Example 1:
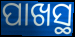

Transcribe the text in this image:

ପାଖସ୍ଥ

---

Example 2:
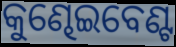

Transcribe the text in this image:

କୁଣ୍ଢେଇବେଣ୍ଟ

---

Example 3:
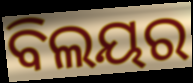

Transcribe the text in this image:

ବିଲୟର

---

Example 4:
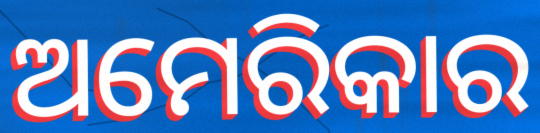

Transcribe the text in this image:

ଅମେରିକାର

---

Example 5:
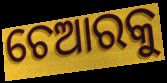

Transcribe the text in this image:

ଚେଆରକୁ